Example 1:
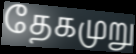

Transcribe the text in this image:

தேகமுறு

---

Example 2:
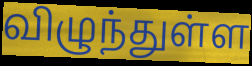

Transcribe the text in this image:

விழுந்துள்ள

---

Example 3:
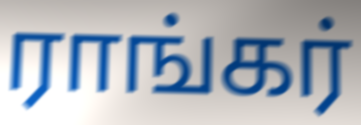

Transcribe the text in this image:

ராங்கர்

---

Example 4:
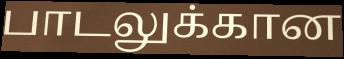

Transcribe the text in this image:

பாடலுக்கான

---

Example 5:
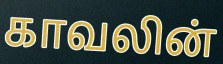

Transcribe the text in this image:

காவலின்